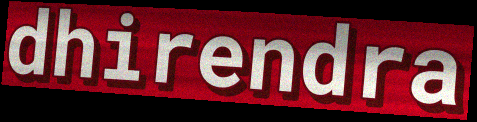
dhirendra